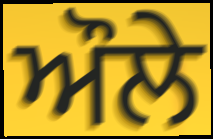
ਔਲੇ